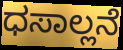
ಧಸಾಲ್ಲನೆ